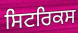
ਸਿਟਰਿਕਸ